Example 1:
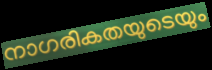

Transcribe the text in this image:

നാഗരികതയുടെയും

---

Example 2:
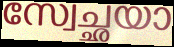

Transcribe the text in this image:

സ്വേച്ഛയാ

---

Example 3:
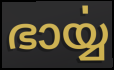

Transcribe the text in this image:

ഭാൎയ്യ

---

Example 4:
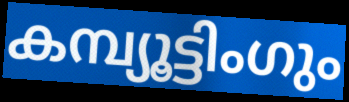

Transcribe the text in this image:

കമ്പ്യൂട്ടിംഗും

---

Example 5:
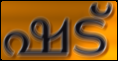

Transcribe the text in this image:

ഷട്